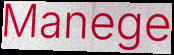
Manege